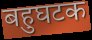
बहुघटक